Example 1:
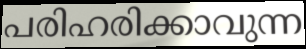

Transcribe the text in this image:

പരിഹരിക്കാവുന്ന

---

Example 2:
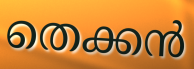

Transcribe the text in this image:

തെക്കൻ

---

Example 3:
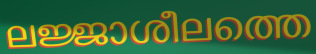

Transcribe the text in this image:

ലജ്ജാശീലത്തെ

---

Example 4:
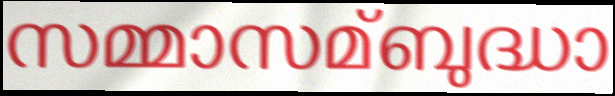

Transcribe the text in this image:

സമ്മാസമ്ബുദ്ധാ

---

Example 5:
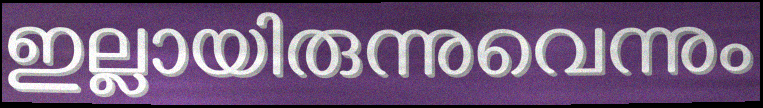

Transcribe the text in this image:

ഇല്ലായിരുന്നുവെന്നും